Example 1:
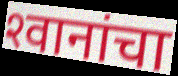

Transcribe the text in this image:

श्वानांचा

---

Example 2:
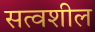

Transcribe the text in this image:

सत्वशील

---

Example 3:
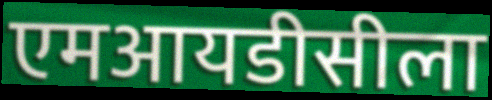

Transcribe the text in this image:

एमआयडीसीला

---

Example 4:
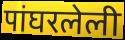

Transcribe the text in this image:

पांघरलेली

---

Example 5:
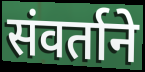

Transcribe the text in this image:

संवर्ताने